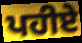
ਪਹੀਏ